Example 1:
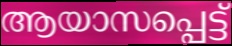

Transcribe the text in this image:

ആയാസപ്പെട്ട്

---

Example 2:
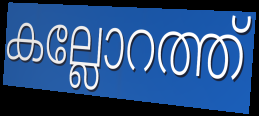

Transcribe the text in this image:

കല്ലോറത്ത്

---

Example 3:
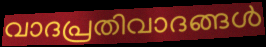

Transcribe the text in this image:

വാദപ്രതിവാദങ്ങൾ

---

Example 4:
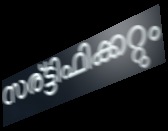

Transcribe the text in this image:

സര്ട്ടിഫിക്കറ്റും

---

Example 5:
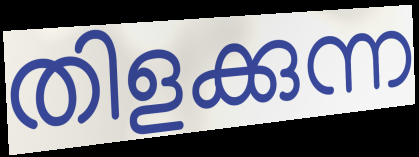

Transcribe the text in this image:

തിളക്കുന്ന